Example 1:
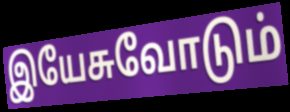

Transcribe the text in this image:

இயேசுவோடும்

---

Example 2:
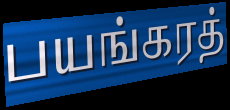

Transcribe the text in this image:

பயங்கரத்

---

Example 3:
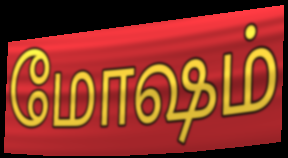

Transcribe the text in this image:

மோஷம்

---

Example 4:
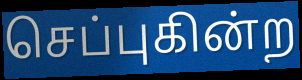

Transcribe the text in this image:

செப்புகின்ற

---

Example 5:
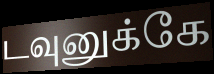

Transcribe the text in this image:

டவுனுக்கே